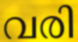
വരി